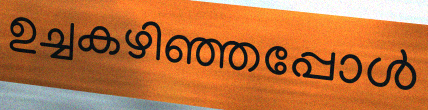
ഉച്ചകഴിഞ്ഞപ്പോൾ